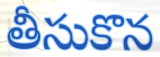
తీసుకొన